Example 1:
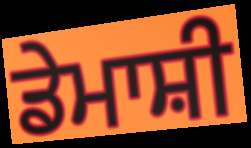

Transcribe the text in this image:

ਡੇਮਾਸ਼ੀ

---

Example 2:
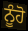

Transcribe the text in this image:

ਨੂੰਹੋ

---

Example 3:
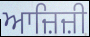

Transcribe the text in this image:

ਆਜ਼ਿਜ਼ੀ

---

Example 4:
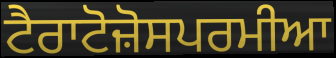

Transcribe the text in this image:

ਟੈਰਾਟੋਜ਼ੋਸਪਰਮੀਆ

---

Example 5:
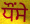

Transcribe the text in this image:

ਧੌਂਸੇ